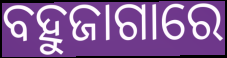
ବହୁଜାଗାରେ